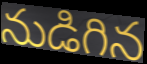
నుడిగిన